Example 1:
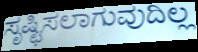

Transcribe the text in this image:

ಸೃಷ್ಟಿಸಲಾಗುವುದಿಲ್ಲ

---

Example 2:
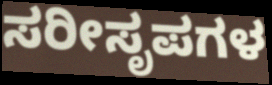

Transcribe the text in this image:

ಸರೀಸೃಪಗಳ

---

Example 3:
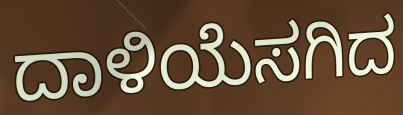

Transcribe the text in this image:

ದಾಳಿಯೆಸಗಿದ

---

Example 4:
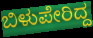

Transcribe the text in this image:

ಬಿಳುಪೇರಿದ್ದ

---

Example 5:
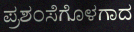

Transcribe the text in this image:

ಪ್ರಶಂಸೆಗೊಳಗಾದ